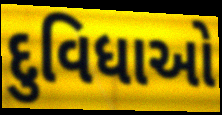
દુવિધાઓ